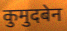
कुमुदबेन